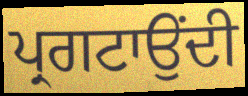
ਪ੍ਰਗਟਾਉਂਦੀ